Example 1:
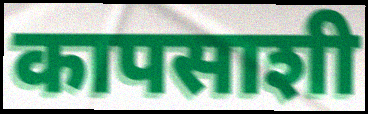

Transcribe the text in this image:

कापसाशी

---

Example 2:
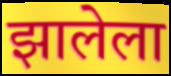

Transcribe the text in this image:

झालेला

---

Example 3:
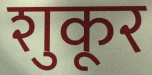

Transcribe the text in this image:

शुकूर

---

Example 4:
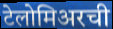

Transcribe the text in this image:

टेलोमिअरची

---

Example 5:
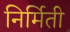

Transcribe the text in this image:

निर्मिती